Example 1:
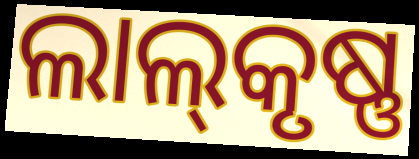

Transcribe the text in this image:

ଲାଲ୍‌କୃଷ୍ଣ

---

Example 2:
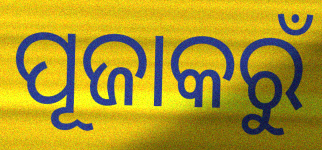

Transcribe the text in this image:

ପୂଜାକରୁଁ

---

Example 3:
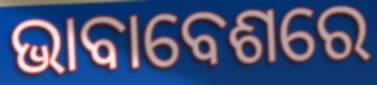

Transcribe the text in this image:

ଭାବାବେଶରେ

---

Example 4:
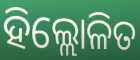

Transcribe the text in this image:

ହିଲ୍ଲୋଳିତ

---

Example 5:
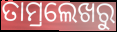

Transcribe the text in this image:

ତାମ୍ରଲେଖରୁ